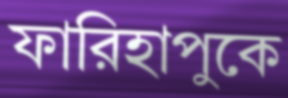
ফারিহাপুকে